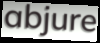
abjure